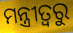
ମନ୍ତ୍ରୀତ୍ୱରୁ